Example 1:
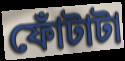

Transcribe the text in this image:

ফোঁটাটা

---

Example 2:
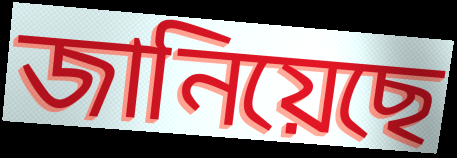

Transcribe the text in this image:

জানিয়েছে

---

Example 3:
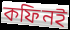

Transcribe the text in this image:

কফিনই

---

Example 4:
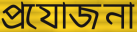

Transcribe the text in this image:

প্রযোজনা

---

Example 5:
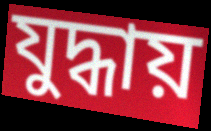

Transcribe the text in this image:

যুদ্ধায়